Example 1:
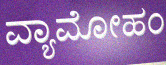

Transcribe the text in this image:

ವ್ಯಾಮೋಹಂ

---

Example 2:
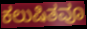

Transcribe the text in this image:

ಕಲುಷಿತವೂ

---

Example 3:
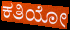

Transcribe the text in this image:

ಕತಿಯೋ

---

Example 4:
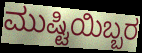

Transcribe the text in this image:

ಮುಷ್ಟಿಯಿಬ್ಬರ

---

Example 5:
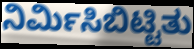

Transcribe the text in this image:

ನಿರ್ಮಿಸಿಬಿಟ್ಟಿತು